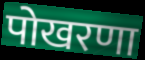
पोखरणा